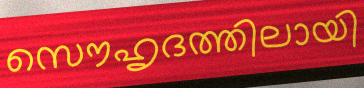
സൌഹൃദത്തിലായി